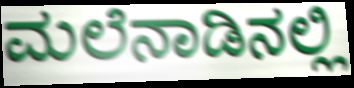
ಮಲೆನಾಡಿನಲ್ಲಿ